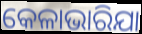
କେଳାଭାରିଯା